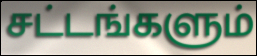
சட்டங்களும்